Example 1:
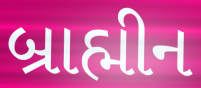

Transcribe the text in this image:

બ્રાહ્મીન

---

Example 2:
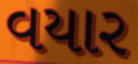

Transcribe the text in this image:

વયાર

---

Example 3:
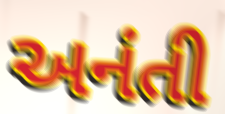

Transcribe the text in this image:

અનંતી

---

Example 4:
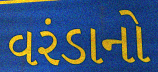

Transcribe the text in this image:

વરંડાનો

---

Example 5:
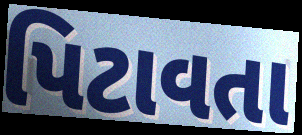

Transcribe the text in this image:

પિટાવતા